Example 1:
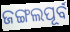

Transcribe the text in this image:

ଜଙ୍ଗଲପୂର୍ବ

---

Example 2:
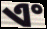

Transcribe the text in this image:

ଏଂ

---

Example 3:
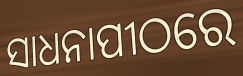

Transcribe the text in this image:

ସାଧନାପୀଠରେ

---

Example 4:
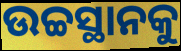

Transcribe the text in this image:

ଉଚ୍ଚସ୍ଥାନକୁ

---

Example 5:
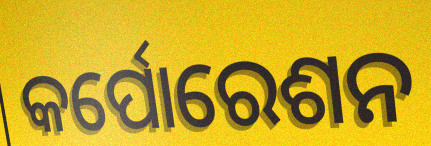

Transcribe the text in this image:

କର୍ପୋରେଶନ